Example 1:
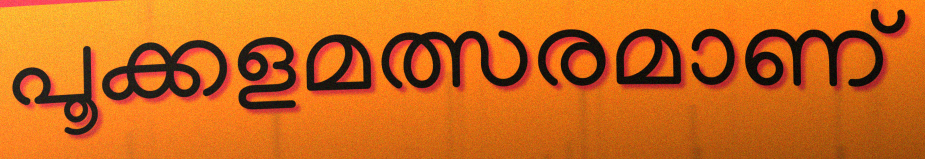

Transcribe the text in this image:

പൂക്കളമത്സരമാണ്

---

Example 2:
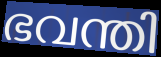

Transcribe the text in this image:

ഭവന്തി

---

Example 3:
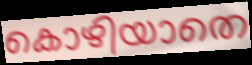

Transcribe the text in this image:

കൊഴിയാതെ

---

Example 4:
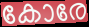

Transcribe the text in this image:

കോരേ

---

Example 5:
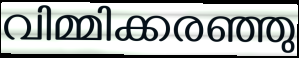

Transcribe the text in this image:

വിമ്മിക്കരഞ്ഞു